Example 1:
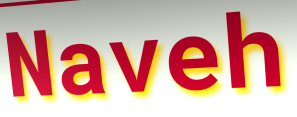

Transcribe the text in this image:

Naveh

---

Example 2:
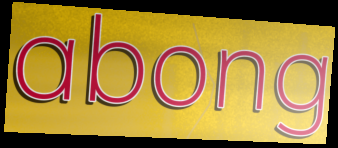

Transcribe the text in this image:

abong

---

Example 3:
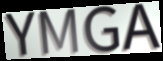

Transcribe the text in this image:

YMGA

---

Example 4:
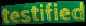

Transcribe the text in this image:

testified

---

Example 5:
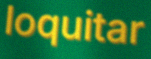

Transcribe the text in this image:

loquitar